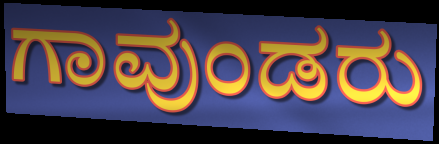
ಗಾವುಂಡರು